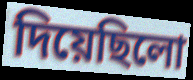
দিয়েছিলো